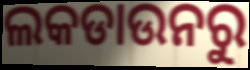
ଲକଡାଉନରୁ